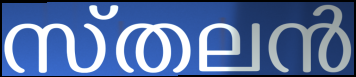
സ്‌തലൻ